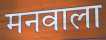
मनवाला